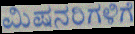
ಮಿಷನರಿಗಳಿಗೆ